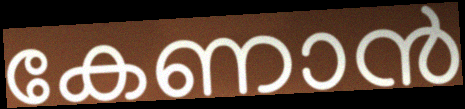
കേണാൻ